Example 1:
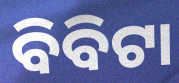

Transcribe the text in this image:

ବିବିଟା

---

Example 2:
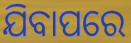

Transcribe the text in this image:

ଯିବାପରେ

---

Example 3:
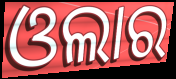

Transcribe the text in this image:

ଓଲାର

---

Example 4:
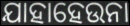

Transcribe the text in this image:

ଯାହାହେଉନା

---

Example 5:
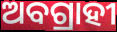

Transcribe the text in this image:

ଅବଗ୍ରାହୀ